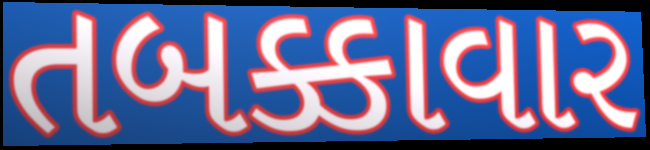
તબક્કાવાર